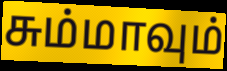
சும்மாவும்